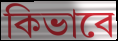
কিভাবে